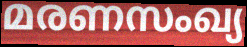
മരണസംഖ്യ